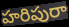
హరిపురా